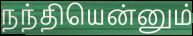
நந்தியென்னும்